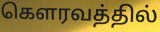
கௌரவத்தில்